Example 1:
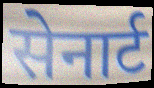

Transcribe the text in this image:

सेनार्ट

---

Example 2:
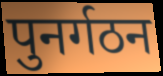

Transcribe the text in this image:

पुनर्गठन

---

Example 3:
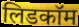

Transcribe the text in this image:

लिडकॉम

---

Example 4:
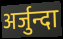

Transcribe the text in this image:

अर्जुन्दा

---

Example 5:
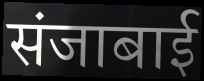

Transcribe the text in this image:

संजाबाई